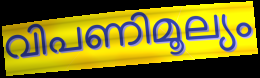
വിപണിമൂല്യം